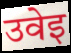
उवेइ